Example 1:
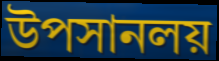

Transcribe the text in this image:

উপসানলয়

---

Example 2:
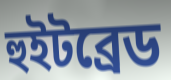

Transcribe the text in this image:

হুইটব্রেড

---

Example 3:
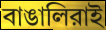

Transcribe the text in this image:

বাঙালিরাই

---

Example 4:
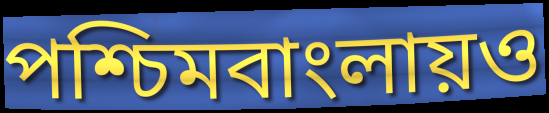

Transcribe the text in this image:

পশ্চিমবাংলায়ও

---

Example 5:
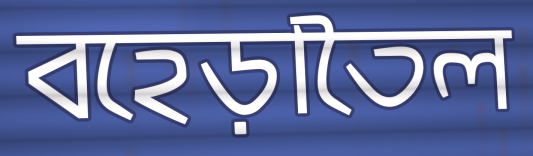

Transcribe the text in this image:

বহেড়াতৈল